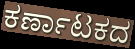
ಕರ್ಣಾಟಕದ